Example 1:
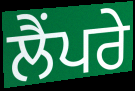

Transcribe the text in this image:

ਲੈਂਪਰੇ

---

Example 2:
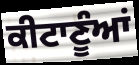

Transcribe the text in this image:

ਕੀਟਾਣੂੰਆਂ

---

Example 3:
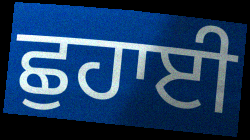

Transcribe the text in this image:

ਛੁਹਾਈ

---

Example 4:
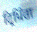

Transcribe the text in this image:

ਟ੍ਰਿਪਿੰਗ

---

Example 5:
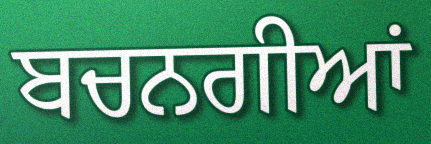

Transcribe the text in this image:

ਬਚਨਗੀਆਂ